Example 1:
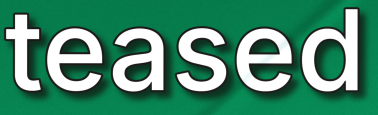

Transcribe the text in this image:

teased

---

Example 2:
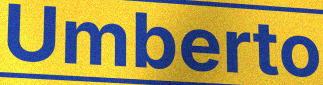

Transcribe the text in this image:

Umberto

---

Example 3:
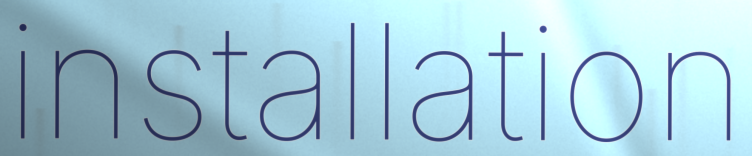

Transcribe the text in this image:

installation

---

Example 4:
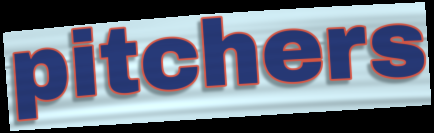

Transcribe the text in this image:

pitchers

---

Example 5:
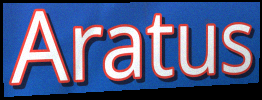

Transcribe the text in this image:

Aratus